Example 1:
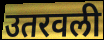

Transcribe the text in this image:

उतरवली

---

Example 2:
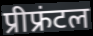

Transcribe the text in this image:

प्रीफ्रंटल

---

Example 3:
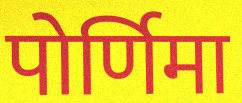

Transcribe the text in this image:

पोर्णिमा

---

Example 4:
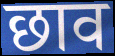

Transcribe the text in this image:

छाव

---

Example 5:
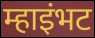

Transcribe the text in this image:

म्हाइंभट